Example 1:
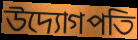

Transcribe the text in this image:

উদ্যোগপতি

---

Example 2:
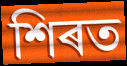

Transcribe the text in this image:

শিৰত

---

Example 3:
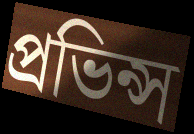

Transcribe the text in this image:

প্ৰভিন্স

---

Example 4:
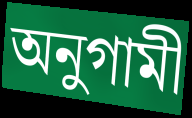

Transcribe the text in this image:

অনুগামী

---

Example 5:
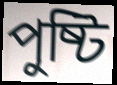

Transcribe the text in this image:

পুষ্টি